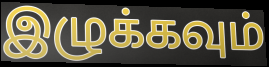
இழுக்கவும்